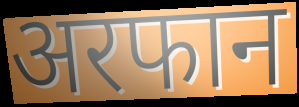
अरफान